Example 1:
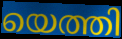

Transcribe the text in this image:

യെത്തി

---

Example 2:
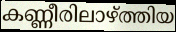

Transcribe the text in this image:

കണ്ണീരിലാഴ്ത്തിയ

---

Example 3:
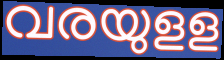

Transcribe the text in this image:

വരയുളള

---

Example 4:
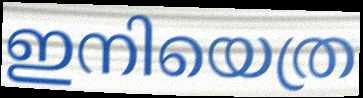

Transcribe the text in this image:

ഇനിയെത്ര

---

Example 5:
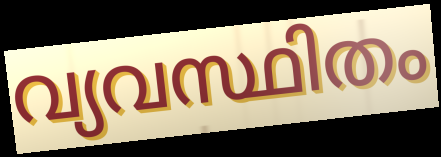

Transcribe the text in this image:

വ്യവസ്ഥിതം